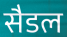
सैडल